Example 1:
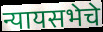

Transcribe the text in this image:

न्यायसभेचे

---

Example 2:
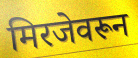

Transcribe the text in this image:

मिरजेवरून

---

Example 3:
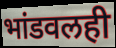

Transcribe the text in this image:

भांडवलही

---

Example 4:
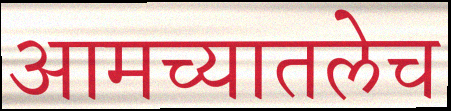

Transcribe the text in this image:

आमच्यातलेच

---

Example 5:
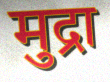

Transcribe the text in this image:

मुद्रा